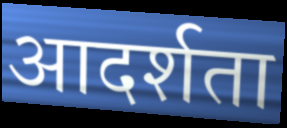
आदर्शता